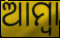
ଆମ୍ବା